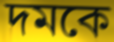
দমকে